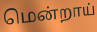
மென்றாய்